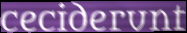
ceciderunt